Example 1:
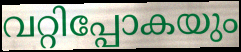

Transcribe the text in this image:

വറ്റിപ്പോകയും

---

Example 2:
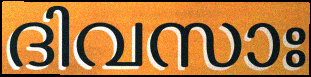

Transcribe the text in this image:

ദിവസാഃ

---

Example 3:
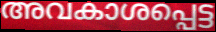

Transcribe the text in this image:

അവകാശപ്പെട്ട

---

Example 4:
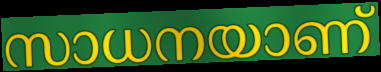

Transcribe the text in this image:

സാധനയാണ്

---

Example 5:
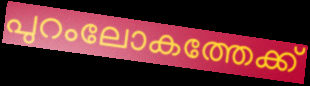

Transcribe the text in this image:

പുറംലോകത്തേക്ക്